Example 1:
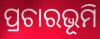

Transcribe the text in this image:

ପ୍ରଚାରଭୂମି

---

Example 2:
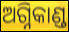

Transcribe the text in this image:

ଅଗ୍ନିକାଣ୍ଡ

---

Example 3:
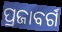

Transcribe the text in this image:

ପ୍ରଜାବର୍ଗ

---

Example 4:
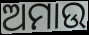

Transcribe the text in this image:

ଅମାଉ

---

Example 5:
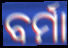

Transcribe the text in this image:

ବର୍ମା